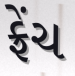
ફ્રેંચ